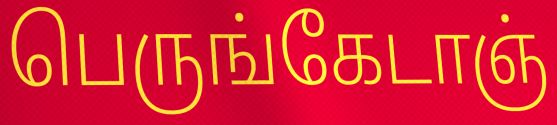
பெருங்கேடாஞ்